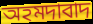
অহমদাবাদ